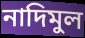
নাদিমুল